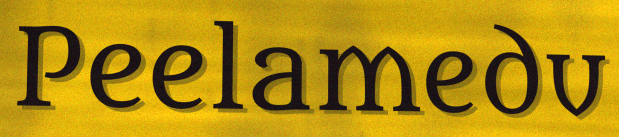
Peelamedu